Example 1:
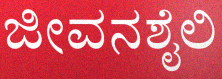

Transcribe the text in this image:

ಜೀವನಶೈಲಿ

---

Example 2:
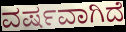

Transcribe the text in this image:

ವರ್ಷವಾಗಿದೆ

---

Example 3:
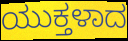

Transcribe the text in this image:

ಯುಕ್ತಳಾದ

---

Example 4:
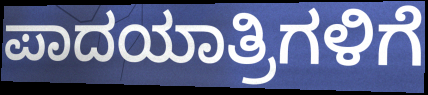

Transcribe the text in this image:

ಪಾದಯಾತ್ರಿಗಳಿಗೆ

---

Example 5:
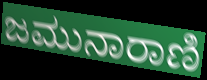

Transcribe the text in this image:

ಜಮುನಾರಾಣಿ